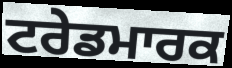
ਟਰੇਡਮਾਰਕ